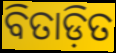
ବିତାଡ଼ିତ